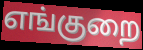
எங்குறை